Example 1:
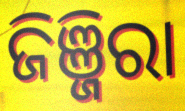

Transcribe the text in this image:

ଜିଞ୍ଜିରା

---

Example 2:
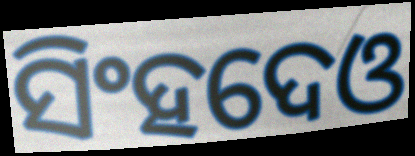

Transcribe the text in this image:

ସିଂହଦେଓ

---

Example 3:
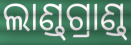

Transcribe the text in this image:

ଲାଣ୍ଡ୍‍ଗ୍ରାଣ୍ଡ୍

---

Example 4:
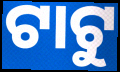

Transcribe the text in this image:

ଟାଟୁ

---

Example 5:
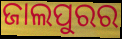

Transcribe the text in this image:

ଜାଲପୁରର